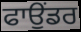
ਫਾਉਂਡਰ